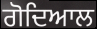
ਗੋਦਿਆਲ